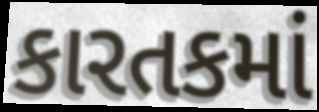
કારતકમાં